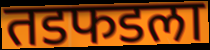
तडफडला